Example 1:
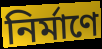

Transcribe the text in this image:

নিৰ্মাণে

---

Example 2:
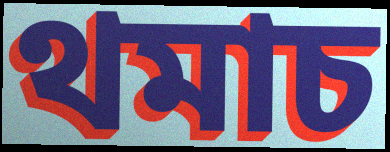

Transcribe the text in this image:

থমাচ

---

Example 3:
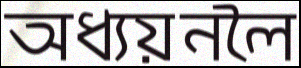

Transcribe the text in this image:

অধ্যয়নলৈ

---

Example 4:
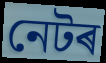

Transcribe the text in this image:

নেটৰ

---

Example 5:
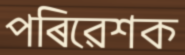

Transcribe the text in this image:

পৰিৱেশক